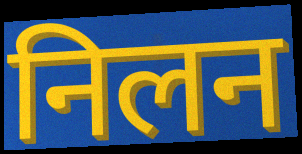
निलन